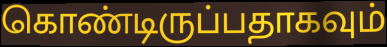
கொண்டிருப்பதாகவும்